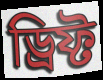
ড্রিফ্ট